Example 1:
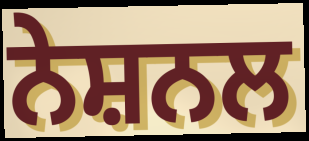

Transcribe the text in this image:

ਨੇਸ਼ਨਲ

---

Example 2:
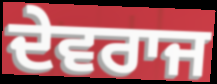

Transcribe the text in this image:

ਦੇਵਰਾਜ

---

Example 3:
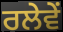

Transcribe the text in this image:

ਰਲੇਵੇਂ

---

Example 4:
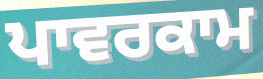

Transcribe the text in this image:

ਪਾਵਰਕਾਮ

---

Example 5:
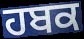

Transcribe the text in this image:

ਹਬਕ